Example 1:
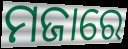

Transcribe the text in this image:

ମଜାରେ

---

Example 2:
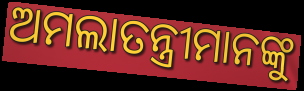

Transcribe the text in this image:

ଅମଲାତନ୍ତ୍ରୀମାନଙ୍କୁ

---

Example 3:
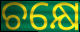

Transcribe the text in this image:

ଚକ୍ଷେ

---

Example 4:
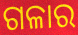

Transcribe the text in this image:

ଗଳାର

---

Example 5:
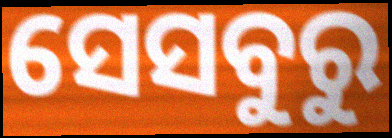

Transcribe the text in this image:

ସେସବୁରୁ